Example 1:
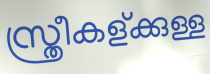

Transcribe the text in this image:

സ്ത്രീകള്ക്കുള്ള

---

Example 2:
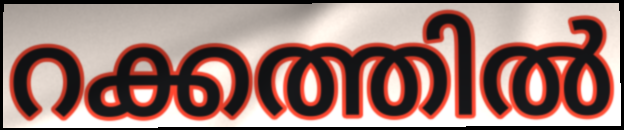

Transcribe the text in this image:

റക്കത്തിൽ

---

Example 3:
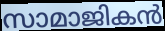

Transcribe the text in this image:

സാമാജികൻ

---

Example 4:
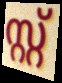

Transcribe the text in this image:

സ്റ്റ്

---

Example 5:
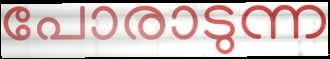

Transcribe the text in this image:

പോരാടുന്ന